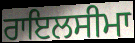
ਰਾਇਲਸੀਮਾ